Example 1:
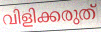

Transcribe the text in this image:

വിളിക്കരുത്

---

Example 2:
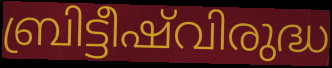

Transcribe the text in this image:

ബ്രിട്ടീഷ്‌വിരുദ്ധ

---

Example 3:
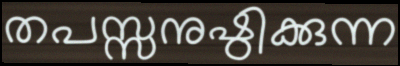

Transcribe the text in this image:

തപസ്സനുഷ്ഠിക്കുന്ന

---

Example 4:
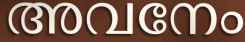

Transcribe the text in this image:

അവനേം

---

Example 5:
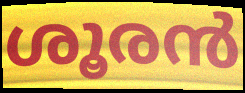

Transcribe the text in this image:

ശൂരൻ